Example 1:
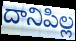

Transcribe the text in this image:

దానిపిల్ల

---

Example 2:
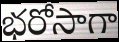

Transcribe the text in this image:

భరోసాగా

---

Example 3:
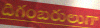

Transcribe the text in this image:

దిగంబరులుగా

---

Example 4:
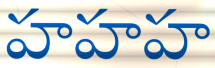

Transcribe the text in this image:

హహహ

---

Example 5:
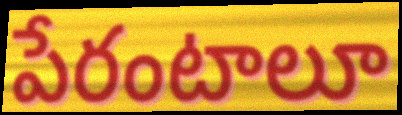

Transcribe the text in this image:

పేరంటాలూ